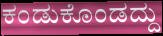
ಕಂಡುಕೊಂಡದ್ದು